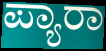
ಪ್ಯಾರಾ